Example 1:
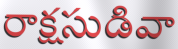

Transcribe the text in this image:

రాక్షసుడివా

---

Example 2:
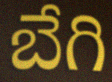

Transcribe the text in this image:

బేగి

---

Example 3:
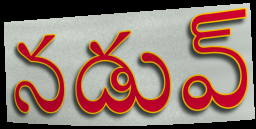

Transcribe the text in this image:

నడువ్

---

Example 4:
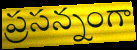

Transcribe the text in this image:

ప్రసన్నంగా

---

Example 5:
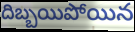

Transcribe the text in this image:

దిబ్బయిపోయిన